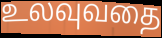
உலவுவதை